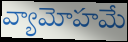
వ్యామోహమే